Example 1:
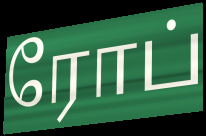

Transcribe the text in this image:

ரோப்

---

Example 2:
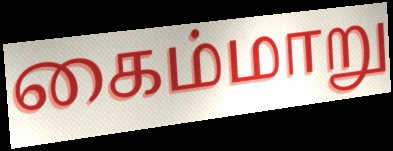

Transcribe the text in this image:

கைம்மாறு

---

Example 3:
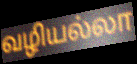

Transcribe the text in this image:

வழியல்லா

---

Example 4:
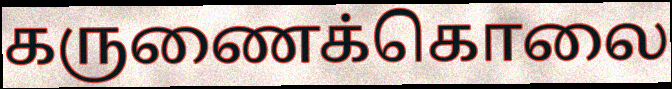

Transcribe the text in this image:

கருணைக்கொலை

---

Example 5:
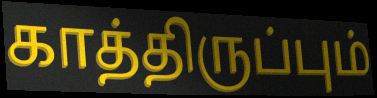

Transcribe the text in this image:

காத்திருப்பும்